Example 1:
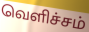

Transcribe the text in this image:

வெளிச்சம்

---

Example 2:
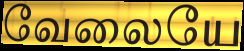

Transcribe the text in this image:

வேலையே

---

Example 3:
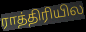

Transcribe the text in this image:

ராத்திரியில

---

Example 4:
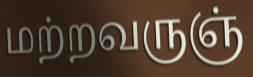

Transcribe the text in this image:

மற்றவருஞ்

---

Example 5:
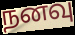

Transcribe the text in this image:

நனவு